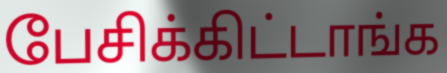
பேசிக்கிட்டாங்க